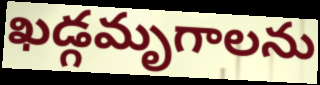
ఖడ్గమృగాలను